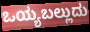
ಒಯ್ಯಬಲ್ಲುದು